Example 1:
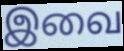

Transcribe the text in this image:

இவை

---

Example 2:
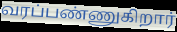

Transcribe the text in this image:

வரப்பண்ணுகிறார்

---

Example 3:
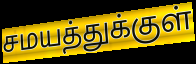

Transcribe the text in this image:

சமயத்துக்குள்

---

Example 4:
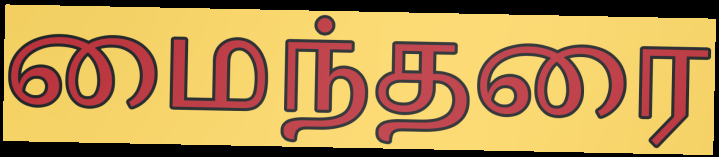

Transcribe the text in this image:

மைந்தரை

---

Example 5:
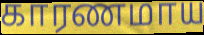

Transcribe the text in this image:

காரணமாய